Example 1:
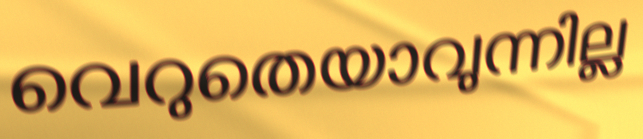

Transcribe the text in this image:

വെറുതെയാവുന്നില്ല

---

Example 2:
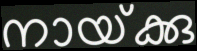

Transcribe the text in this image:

നായ്‌ക്കു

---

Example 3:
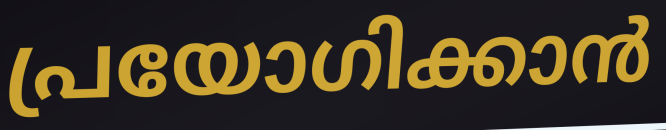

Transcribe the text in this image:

പ്രയോഗിക്കാൻ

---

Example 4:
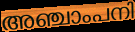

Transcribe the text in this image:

അഞ്ചാംപനി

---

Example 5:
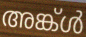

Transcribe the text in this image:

അങ്ക്ൾ